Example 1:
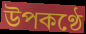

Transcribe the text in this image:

উপকণ্ঠে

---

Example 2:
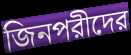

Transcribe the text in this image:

জিনপরীদের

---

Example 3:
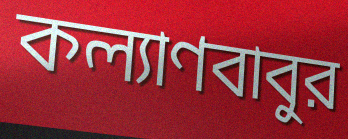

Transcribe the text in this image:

কল্যাণবাবুর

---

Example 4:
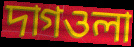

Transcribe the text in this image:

দাগওলা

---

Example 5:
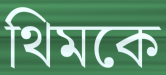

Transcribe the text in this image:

থিমকে